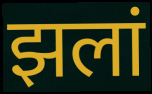
झलां